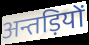
अन्तड़ियों